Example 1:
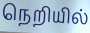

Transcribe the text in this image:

நெறியில்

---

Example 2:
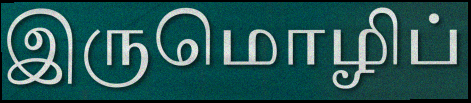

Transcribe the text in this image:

இருமொழிப்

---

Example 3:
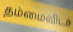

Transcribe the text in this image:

தம்மைவிடச்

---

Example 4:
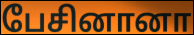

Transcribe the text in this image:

பேசினானா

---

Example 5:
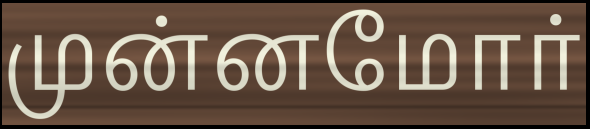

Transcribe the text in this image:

முன்னமோர்